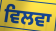
ਵਿਲਵਾ